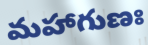
మహాగుణః